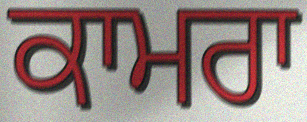
ਕਾਮਰਾ